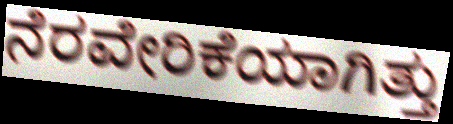
ನೆರವೇರಿಕೆಯಾಗಿತ್ತು